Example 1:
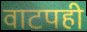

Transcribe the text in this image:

वाटपही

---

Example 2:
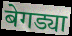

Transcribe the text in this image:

बेगड्या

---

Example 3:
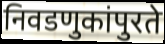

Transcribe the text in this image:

निवडणुकांपुरते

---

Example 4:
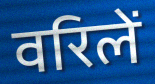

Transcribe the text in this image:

वरिलें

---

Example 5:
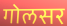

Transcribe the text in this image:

गोलसर